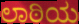
ಲಾಠಿಯ